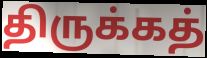
திருக்கத்